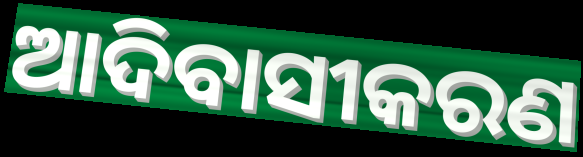
ଆଦିବାସୀକରଣ